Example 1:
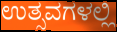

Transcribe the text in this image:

ಉತ್ಸವಗಳಲ್ಲಿ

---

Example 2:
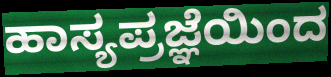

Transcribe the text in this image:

ಹಾಸ್ಯಪ್ರಜ್ಞೆಯಿಂದ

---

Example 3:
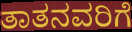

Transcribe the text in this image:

ತಾತನವರಿಗೆ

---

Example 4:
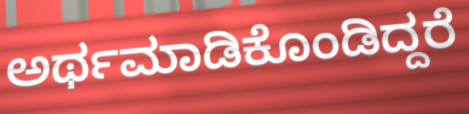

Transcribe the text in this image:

ಅರ್ಥಮಾಡಿಕೊಂಡಿದ್ದರೆ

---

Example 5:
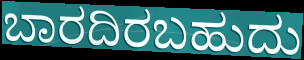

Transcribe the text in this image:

ಬಾರದಿರಬಹುದು